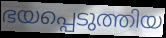
ഭയപ്പെടുത്തിയ